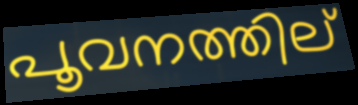
പൂവനത്തില്